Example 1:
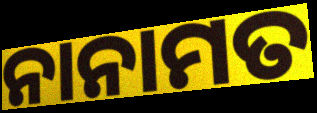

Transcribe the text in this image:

ନାନାମତ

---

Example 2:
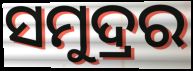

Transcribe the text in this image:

ସମୁଦ୍ରର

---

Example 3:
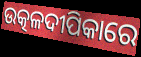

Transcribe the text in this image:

ଉତ୍କଳଦୀପିକାରେ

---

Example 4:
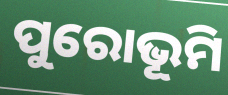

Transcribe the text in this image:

ପୁରୋଭୂମି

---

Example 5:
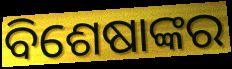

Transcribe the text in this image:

ବିଶେଷାଙ୍କର